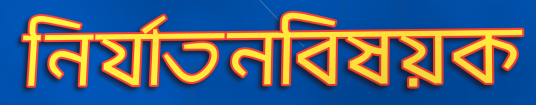
নির্যাতনবিষয়ক